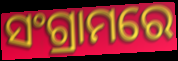
ସଂଗ୍ରାମରେ